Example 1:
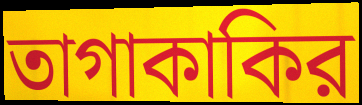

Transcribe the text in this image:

তাগাকাকির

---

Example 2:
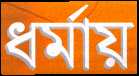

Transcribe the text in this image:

ধর্মায়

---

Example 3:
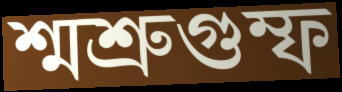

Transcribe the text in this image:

শ্মশ্রুগুম্ফ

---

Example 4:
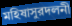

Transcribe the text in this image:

মহিষাসুরদলনী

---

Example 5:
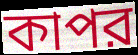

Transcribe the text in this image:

কাপর